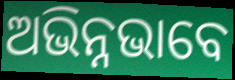
ଅଭିନ୍ନଭାବେ